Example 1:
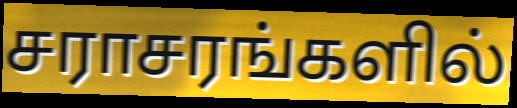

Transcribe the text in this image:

சராசரங்களில்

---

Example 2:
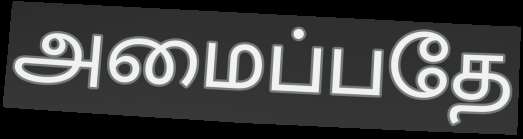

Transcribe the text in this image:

அமைப்பதே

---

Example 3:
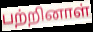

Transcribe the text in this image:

பற்றினாள்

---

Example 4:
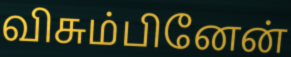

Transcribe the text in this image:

விசும்பினேன்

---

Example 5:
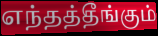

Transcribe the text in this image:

எந்தத்தீங்கும்